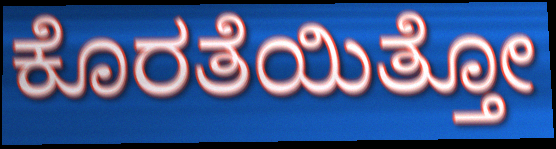
ಕೊರತೆಯಿತ್ತೋ